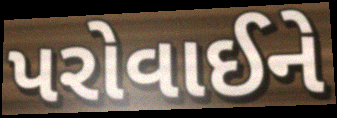
પરોવાઈને